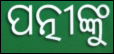
ପତ୍ନୀଙ୍କୁ